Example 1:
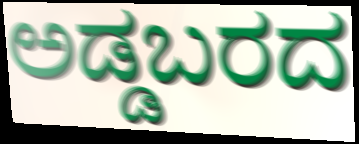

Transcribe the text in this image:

ಅಡ್ಡಬರದ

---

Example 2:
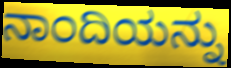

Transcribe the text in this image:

ನಾಂದಿಯನ್ನು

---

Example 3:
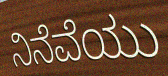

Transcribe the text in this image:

ನಿನೆವೆಯು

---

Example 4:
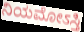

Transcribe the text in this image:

ನಿಯಮೋಽಸ್ತಿ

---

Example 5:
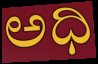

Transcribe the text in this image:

ಅಧಿ